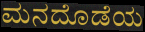
ಮನದೊಡೆಯ